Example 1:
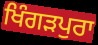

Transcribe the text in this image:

ਖਿੰਗੜਪੁਰਾ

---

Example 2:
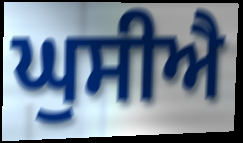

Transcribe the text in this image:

ਘੁਸੀਐ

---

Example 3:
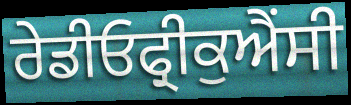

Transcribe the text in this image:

ਰੇਡੀਓਫ੍ਰੀਕੁਐਂਸੀ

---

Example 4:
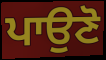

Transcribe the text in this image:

ਪਾਉਣੋ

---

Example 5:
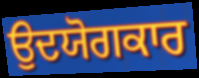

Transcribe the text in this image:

ਉਦਯੋਗਕਾਰ